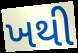
ખથી